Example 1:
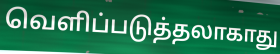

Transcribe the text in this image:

வெளிப்படுத்தலாகாது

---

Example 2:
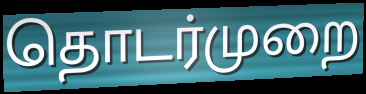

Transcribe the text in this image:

தொடர்முறை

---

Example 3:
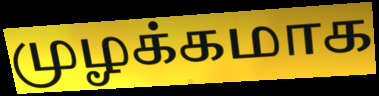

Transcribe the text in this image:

முழக்கமாக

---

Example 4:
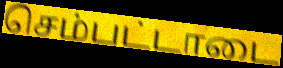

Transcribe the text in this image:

செம்பட்டாடை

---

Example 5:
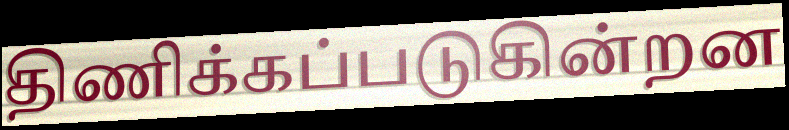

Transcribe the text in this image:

திணிக்கப்படுகின்றன